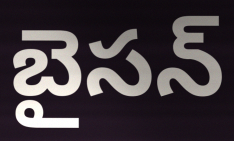
బైసన్